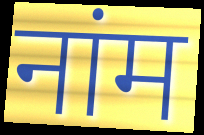
नांम